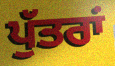
ਪੁੱਤਰਾਂ